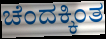
ಚೆಂದಕ್ಕಿಂತ